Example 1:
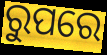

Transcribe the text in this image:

ରୁପରେ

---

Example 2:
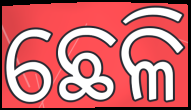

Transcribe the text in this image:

ଛେଳି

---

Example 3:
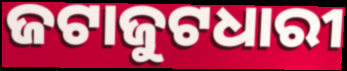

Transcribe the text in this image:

ଜଟାଜୁଟଧାରୀ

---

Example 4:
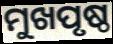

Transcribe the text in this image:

ମୁଖପୃଷ୍ଠ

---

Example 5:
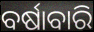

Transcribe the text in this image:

ବର୍ଷାବାରି